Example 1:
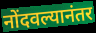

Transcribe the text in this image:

नोंदवल्यानंतर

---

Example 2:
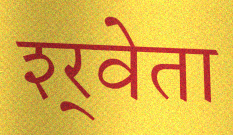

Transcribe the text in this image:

श्र्वेता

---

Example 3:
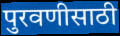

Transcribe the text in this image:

पुरवणीसाठी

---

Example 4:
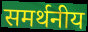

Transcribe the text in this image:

समर्थनीय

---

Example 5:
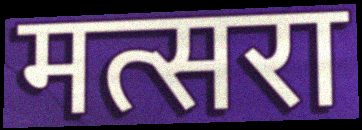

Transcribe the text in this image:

मत्सरा